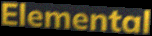
Elemental